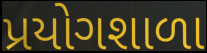
પ્રયોગશાળા